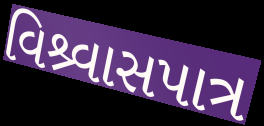
વિશ્ર્વાસપાત્ર